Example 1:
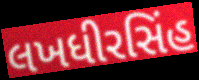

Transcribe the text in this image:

લખધીરસિંહ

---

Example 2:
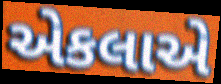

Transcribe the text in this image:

એકલાએ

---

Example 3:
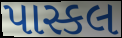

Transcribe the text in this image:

પાસ્કલ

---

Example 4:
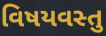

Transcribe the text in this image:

વિષયવસ્તુ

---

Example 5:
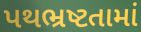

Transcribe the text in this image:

પથભ્રષ્ટતામાં